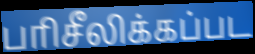
பரிசீலிக்கப்பட